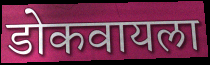
डोकवायला